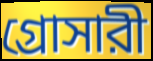
গ্রোসারী